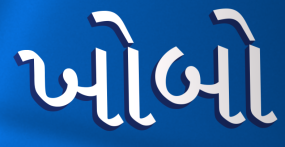
ખોબો